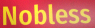
Nobless